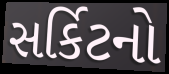
સર્કિટનો